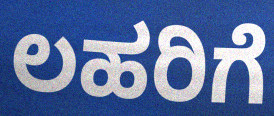
ಲಹರಿಗೆ